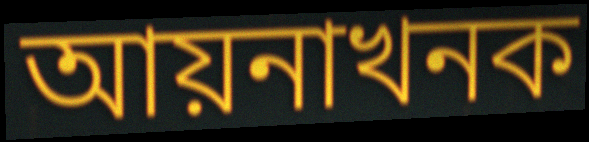
আয়নাখনক